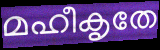
മഹീകൃതേ